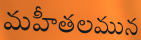
మహీతలమున